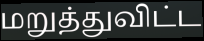
மறுத்துவிட்ட